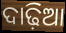
ଦାଢ଼ିଆ